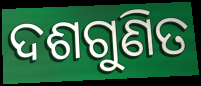
ଦଶଗୁଣିତ